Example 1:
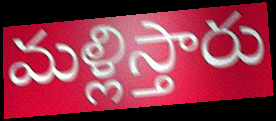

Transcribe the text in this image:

మళ్లిస్తారు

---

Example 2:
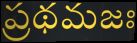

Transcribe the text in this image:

ప్రథమజః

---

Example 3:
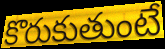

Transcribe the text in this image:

కొరుకుతుంటే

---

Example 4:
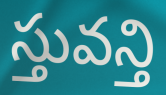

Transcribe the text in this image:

స్తువన్తి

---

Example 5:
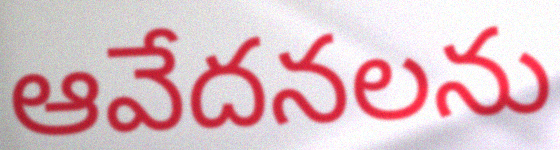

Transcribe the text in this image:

ఆవేదనలను